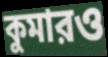
কুমারও